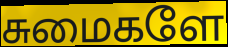
சுமைகளே